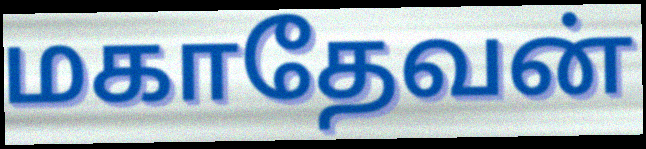
மகாதேவன்